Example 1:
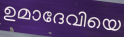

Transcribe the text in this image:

ഉമാദേവിയെ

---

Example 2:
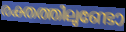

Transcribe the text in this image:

രക്തത്തിലുണ്ടോ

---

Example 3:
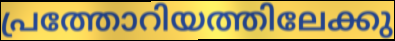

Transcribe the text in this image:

പ്രത്തോറിയത്തിലേക്കു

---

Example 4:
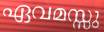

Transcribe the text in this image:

ഏവമസ്സു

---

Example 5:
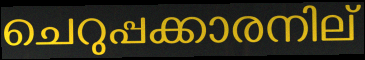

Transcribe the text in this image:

ചെറുപ്പക്കാരനില്